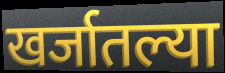
खर्जातल्या